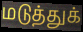
மடுத்துக்